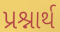
પ્રશ્નાર્થ